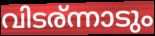
വിടര്ന്നാടും